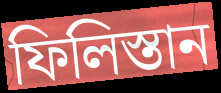
ফিলিস্তান